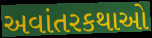
અવાંતરકથાઓ